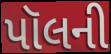
પૉલની